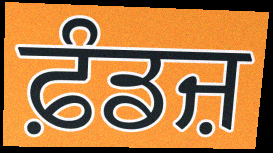
ਫ਼ੰਡਜ਼